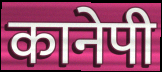
कानेपी